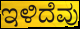
ಇಳಿದೆವು